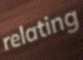
relating